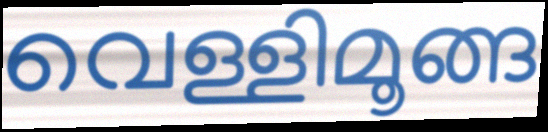
വെള്ളിമൂങ്ങ